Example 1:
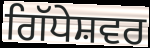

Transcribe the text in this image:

ਗਿੱਧੇਸ਼ਵਰ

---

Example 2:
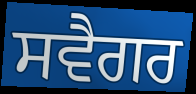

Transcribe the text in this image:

ਸਵੈਗਰ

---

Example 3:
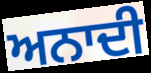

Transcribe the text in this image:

ਅਨਾਦੀ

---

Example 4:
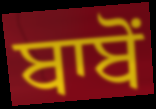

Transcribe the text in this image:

ਬਾਬੋਂ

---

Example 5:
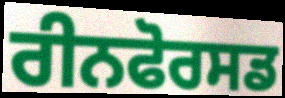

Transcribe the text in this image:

ਰੀਨਫੋਰਸਡ